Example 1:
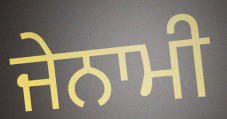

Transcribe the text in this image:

ਜੇਨਾਮੀ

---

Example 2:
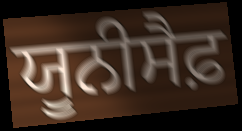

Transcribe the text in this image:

ਯੂਨੀਸੈਫ਼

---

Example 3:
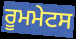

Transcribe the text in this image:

ਰੂਮਮੇਟਸ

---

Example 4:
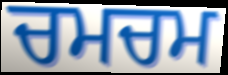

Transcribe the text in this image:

ਚਮਚਮ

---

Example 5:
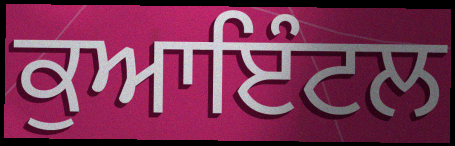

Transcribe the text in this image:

ਕੁਆਇੰਟਲ